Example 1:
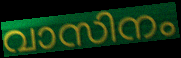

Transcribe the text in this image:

വാസിനം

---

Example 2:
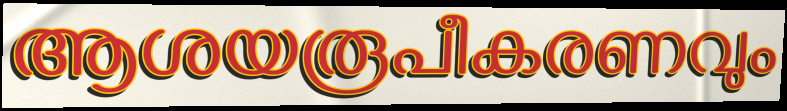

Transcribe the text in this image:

ആശയരൂപീകരണവും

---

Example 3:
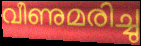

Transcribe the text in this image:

വീണുമരിച്ചു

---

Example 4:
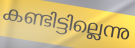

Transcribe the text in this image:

കണ്ടിട്ടില്ലെന്നു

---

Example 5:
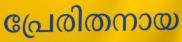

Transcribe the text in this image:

പ്രേരിതനായ